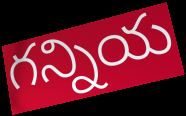
గన్నియ